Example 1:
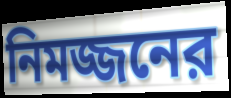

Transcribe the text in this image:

নিমজ্জনের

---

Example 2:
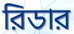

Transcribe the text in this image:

রিডার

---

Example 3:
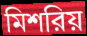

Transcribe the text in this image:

মিশরিয়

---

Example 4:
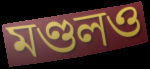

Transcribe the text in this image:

মণ্ডলও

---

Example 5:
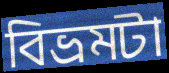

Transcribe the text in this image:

বিভ্রমটা